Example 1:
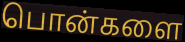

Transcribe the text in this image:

பொன்களை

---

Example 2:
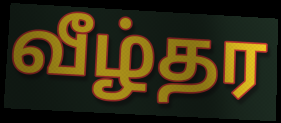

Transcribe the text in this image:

வீழ்தர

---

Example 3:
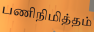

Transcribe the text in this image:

பணிநிமித்தம்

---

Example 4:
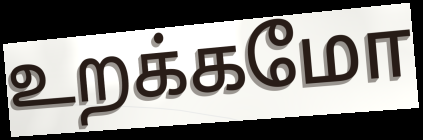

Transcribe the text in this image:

உறக்கமோ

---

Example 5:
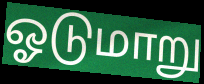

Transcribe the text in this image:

ஓடுமாறு